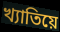
খ্যাতিয়ে